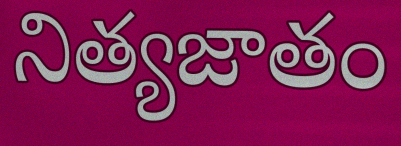
నిత్యజాతం